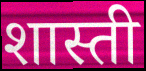
शास्ती